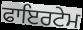
ਫਾਇਰਟੇਮ